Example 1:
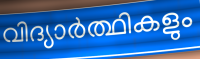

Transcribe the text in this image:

വിദ്യാർത്ഥികളും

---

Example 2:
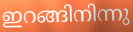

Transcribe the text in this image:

ഇറങ്ങിനിന്നു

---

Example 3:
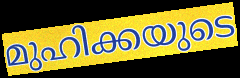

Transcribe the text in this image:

മുഹിക്കയുടെ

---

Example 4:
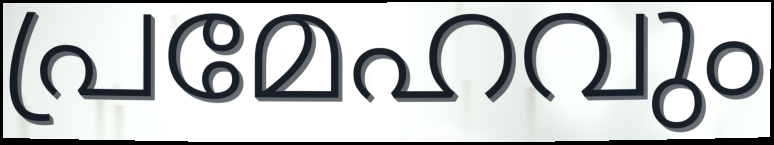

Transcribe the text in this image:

പ്രമേഹവും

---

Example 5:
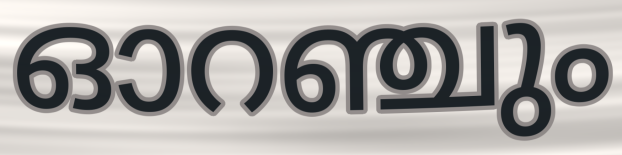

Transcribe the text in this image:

ഓറഞ്ചും